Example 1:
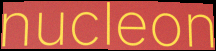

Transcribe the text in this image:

nucleon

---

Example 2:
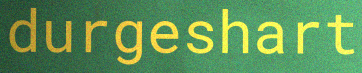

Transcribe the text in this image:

durgeshart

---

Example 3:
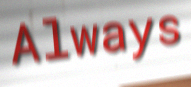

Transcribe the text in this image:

Always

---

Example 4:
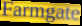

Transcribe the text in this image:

Farmgate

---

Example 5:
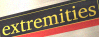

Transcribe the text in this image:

extremities